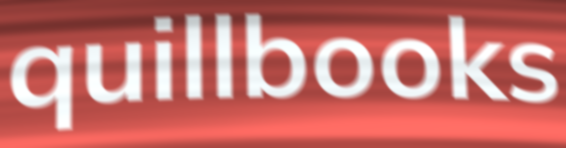
quillbooks